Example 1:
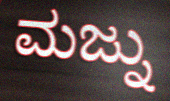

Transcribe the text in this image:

ಮಜ್ನು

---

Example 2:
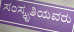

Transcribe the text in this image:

ಸಂಸ್ಕೃತಿಯವರು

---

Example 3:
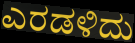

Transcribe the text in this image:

ಎರಡಳಿದು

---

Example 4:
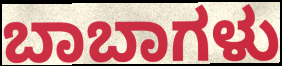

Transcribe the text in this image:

ಬಾಬಾಗಳು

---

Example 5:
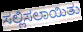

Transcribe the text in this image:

ಸಲ್ಲಿಸಲಾಯಿತು